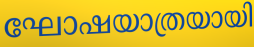
ഘോഷയാത്രയായി